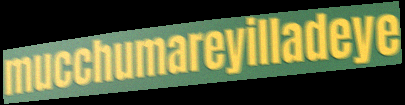
mucchumareyilladeye